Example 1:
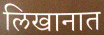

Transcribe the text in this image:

लिखानात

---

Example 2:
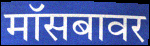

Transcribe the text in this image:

मॉसबावर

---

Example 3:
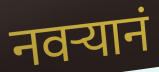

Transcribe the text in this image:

नवऱ्यानं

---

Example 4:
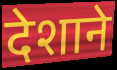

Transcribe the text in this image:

देशाने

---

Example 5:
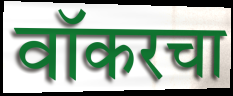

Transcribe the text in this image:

वॉकरचा